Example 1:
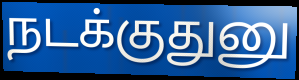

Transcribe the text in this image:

நடக்குதுனு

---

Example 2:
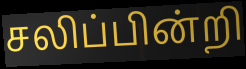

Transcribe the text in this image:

சலிப்பின்றி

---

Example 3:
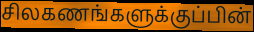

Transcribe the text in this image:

சிலகணங்களுக்குப்பின்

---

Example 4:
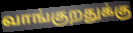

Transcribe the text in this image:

வாங்குறதுக்கு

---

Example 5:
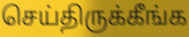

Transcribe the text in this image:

செய்திருக்கீங்க